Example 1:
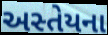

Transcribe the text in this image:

અસ્તેયના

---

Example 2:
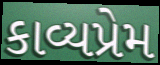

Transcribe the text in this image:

કાવ્યપ્રેમ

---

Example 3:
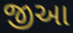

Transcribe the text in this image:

જીઆ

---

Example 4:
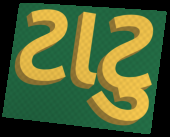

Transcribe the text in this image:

ટાટુ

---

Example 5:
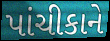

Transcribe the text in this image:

પાંચીકાને